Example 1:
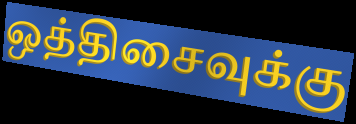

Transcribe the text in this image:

ஒத்திசைவுக்கு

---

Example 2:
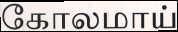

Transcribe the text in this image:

கோலமாய்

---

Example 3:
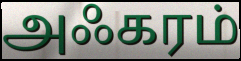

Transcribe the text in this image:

அஃகரம்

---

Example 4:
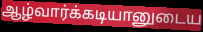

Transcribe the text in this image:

ஆழ்வார்க்கடியானுடைய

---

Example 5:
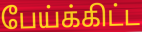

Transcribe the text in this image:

பேய்க்கிட்ட